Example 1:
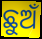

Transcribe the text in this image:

ଛୁଅଁ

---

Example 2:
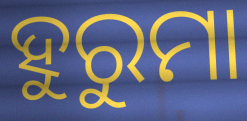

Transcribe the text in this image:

ହୁରୁମା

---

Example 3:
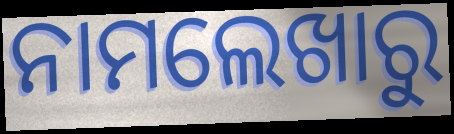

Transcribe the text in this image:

ନାମଲେଖାରୁ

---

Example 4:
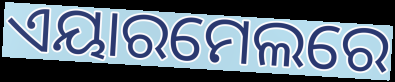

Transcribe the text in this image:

ଏୟାରମେଲରେ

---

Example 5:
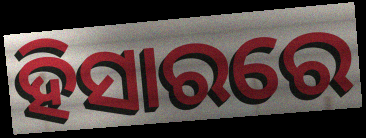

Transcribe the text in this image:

ହିସାରରେ